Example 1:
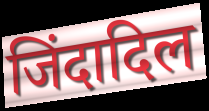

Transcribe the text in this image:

जिंदादिल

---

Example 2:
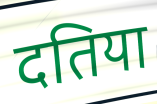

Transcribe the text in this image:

दतिया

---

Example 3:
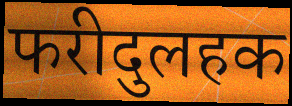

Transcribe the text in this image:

फरीदुलहक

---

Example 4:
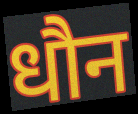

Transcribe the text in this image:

धौन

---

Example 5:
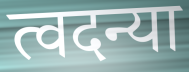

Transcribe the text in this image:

त्वदन्या